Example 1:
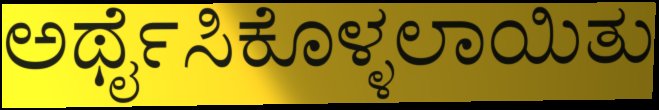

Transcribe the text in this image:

ಅರ್ಥೈಸಿಕೊಳ್ಳಲಾಯಿತು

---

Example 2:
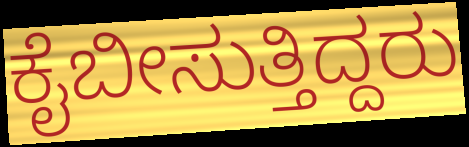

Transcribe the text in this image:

ಕೈಬೀಸುತ್ತಿದ್ದರು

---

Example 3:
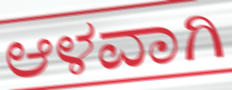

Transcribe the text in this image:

ಆಳವಾಗಿ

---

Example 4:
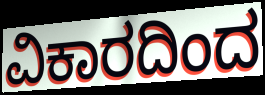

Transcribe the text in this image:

ವಿಕಾರದಿಂದ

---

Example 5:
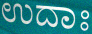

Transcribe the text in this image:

ಉದಾಃ